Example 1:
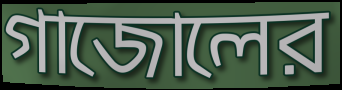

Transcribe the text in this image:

গাজোলের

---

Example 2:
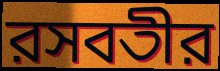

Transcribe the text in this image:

রসবতীর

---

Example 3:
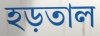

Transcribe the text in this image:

হড়তাল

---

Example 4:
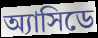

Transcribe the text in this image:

অ্যাসিডে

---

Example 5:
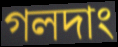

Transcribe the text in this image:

গলদাং